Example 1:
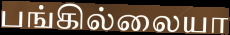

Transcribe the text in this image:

பங்கில்லையா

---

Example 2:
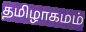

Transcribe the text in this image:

தமிழாகமம்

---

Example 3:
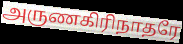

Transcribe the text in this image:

அருணகிரிநாதரே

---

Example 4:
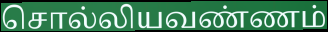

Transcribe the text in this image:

சொல்லியவண்ணம்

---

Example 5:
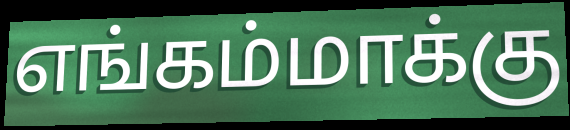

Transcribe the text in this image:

எங்கம்மாக்கு